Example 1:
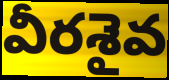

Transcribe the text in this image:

వీరశైవ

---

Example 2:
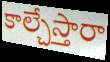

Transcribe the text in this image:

కాల్చేస్తారా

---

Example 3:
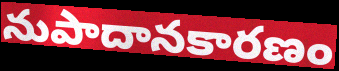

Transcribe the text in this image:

నుపాదానకారణం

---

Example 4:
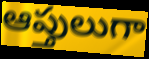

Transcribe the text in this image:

ఆప్తులుగా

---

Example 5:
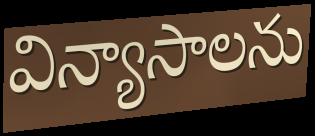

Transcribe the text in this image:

విన్యాసాలను